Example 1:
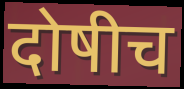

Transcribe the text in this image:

दोषीच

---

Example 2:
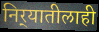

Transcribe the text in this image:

निर्यातीलाही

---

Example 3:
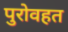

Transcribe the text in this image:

पुरोवहत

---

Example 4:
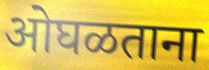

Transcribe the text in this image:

ओघळताना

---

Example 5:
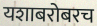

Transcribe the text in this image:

यशाबरोबरच